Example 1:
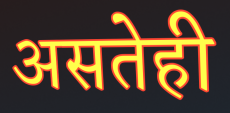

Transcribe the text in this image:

असतेही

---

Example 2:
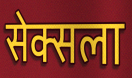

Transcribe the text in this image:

सेक्सला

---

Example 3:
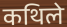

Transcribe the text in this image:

कथिले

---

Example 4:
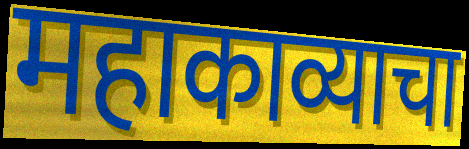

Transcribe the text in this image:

महाकाव्याचा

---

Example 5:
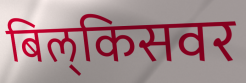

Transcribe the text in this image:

बिल्किसवर